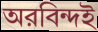
অরবিন্দই